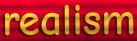
realism